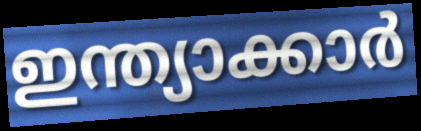
ഇന്ത്യാക്കാർ